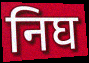
निघ